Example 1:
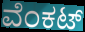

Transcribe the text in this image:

ವೆಂಕಟ್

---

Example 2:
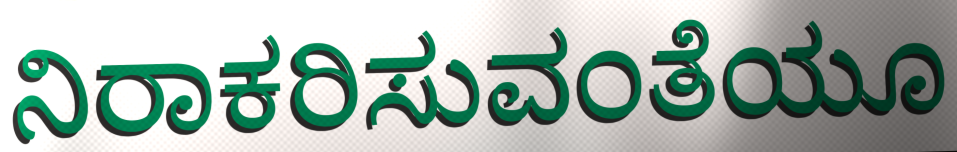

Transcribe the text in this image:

ನಿರಾಕರಿಸುವಂತೆಯೂ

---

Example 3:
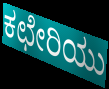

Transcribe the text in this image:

ಕಛೇರಿಯು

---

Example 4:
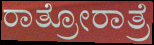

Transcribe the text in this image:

ರಾತ್ರೋರಾತ್ರೆ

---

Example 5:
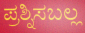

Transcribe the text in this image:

ಪ್ರಶ್ನಿಸಬಲ್ಲ